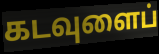
கடவுளைப்